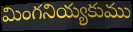
మింగనియ్యకుము